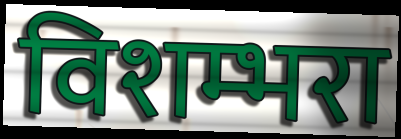
विशम्भरा